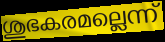
ശുഭകരമല്ലെന്ന്